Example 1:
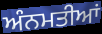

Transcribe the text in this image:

ਅੰਨਮਤੀਆਂ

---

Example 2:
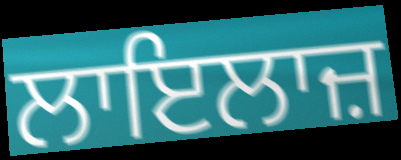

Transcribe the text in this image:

ਲਾਇਲਾਜ਼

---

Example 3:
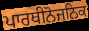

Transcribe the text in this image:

ਪਾਰਥੀਨੋਜਨਿਕ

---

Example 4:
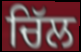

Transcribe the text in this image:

ਚਿੱਲ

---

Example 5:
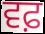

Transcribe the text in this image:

ਵਫ਼